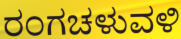
ರಂಗಚಳುವಳಿ